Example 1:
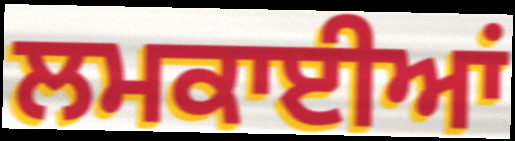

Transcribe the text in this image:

ਲਮਕਾਈਆਂ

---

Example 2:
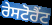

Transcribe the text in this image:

ਰੇਸਟੋਰੈਂਟ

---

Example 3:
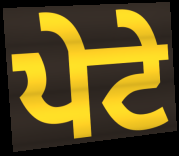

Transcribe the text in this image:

ਪੇਟੇ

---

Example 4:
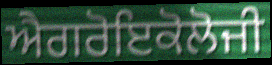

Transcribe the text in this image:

ਐਗਰੋਇਕੋਲੋਜੀ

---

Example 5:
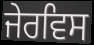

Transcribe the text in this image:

ਜੇਰਵਿਸ